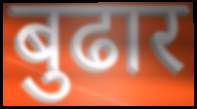
बुढार